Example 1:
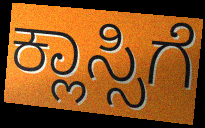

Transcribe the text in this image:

ಕ್ಲಾಸ್ಸಿಗೆ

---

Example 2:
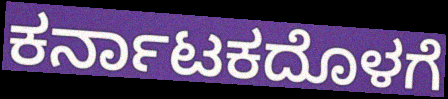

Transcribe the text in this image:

ಕರ್ನಾಟಕದೊಳಗೆ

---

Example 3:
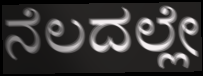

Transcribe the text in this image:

ನೆಲದಲ್ಲೇ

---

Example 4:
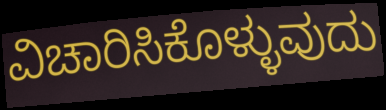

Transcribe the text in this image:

ವಿಚಾರಿಸಿಕೊಳ್ಳುವುದು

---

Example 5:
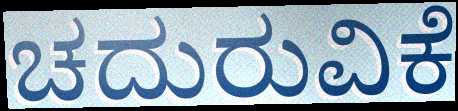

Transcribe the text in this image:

ಚದುರುವಿಕೆ